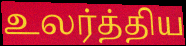
உலர்த்திய